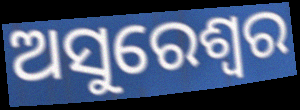
ଅସୁରେଶ୍ଵର